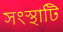
সংস্থাটি